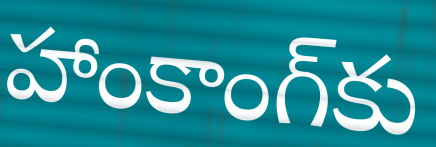
హాంకాంగ్‌కు